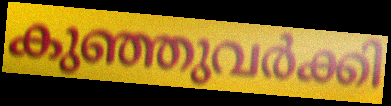
കുഞ്ഞുവർക്കി